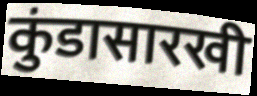
कुंडासारखी